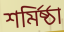
শৰ্মিষ্ঠা